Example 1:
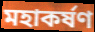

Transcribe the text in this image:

মহাকৰ্ষণ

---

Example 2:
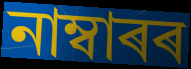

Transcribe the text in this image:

নাম্বাৰৰ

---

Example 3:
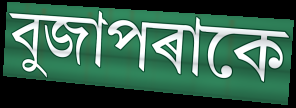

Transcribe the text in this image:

বুজাপৰাকে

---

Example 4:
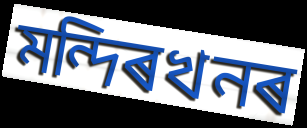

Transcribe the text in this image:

মন্দিৰখনৰ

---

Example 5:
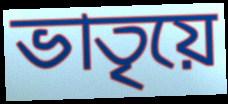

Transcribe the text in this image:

ভাতৃয়ে